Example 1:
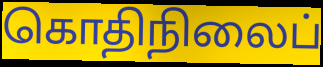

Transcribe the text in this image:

கொதிநிலைப்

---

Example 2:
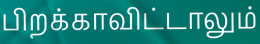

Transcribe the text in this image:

பிறக்காவிட்டாலும்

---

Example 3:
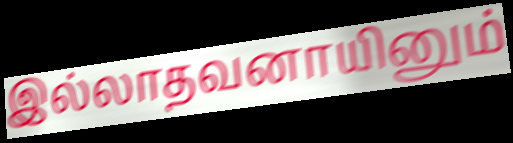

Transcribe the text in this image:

இல்லாதவனாயினும்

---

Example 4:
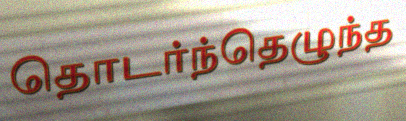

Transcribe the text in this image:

தொடர்ந்தெழுந்த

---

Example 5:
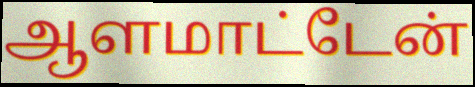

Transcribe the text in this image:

ஆளமாட்டேன்